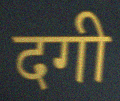
दगी